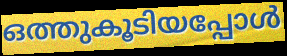
ഒത്തുകൂടിയപ്പോൾ